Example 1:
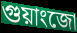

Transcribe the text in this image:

গুয়াংজো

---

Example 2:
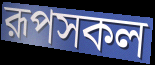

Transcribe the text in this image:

রূপসকল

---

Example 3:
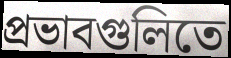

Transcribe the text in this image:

প্রভাবগুলিতে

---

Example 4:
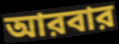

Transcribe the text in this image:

আরবার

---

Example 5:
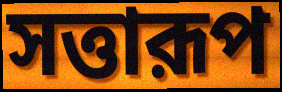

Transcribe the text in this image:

সত্তারূপ